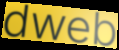
dweb